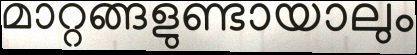
മാറ്റങ്ങളുണ്ടായാലും